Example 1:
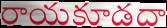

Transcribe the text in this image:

రాయకూడదా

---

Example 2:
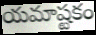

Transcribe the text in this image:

యమాష్టకం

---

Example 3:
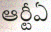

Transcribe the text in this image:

ఆర్టీఏ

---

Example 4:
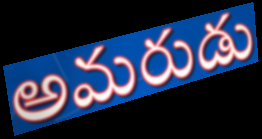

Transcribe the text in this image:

అమరుడు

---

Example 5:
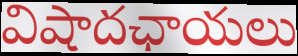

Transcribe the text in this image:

విషాదఛాయలు